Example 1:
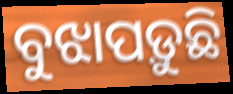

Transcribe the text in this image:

ବୁଝାପଡ଼ୁଛି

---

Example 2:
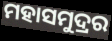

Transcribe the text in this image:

ମହାସମୁଦ୍ରର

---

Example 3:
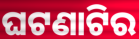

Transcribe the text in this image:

ଘଟଣାଟିର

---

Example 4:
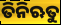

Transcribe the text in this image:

ତିନିଋତୁ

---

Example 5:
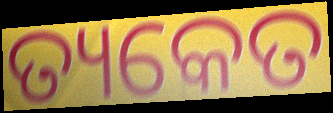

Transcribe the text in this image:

ତ୍ୟକେତ